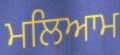
ਮਲਿਆਮ